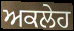
ਅਕਲੇਹ